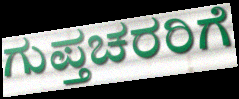
ಗುಪ್ತಚರರಿಗೆ